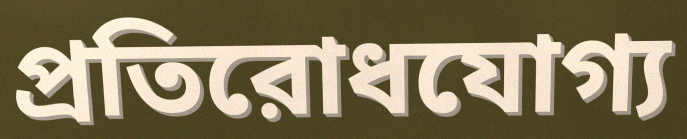
প্রতিরোধযোগ্য